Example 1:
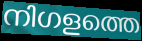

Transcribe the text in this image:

നിഗളത്തെ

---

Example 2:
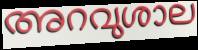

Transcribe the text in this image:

അറവുശാല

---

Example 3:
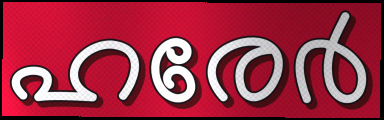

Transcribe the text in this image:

ഹരേർ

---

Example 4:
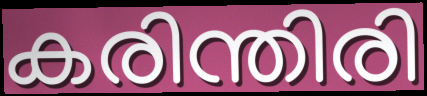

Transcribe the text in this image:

കരിന്തിരി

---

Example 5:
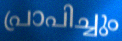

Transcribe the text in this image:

പ്രാപിച്ചും